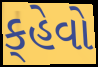
ક્‌હેવો